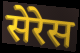
सेरेस